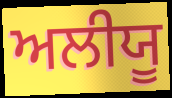
ਅਲੀਯੂ